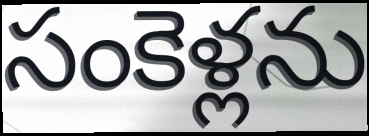
సంకెళ్లను